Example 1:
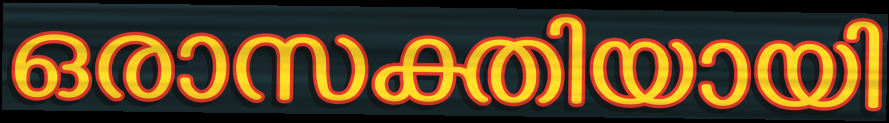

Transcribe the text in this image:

ഒരാസക്തിയായി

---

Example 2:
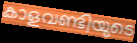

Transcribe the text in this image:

കാളവണ്ടിയുടെ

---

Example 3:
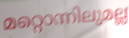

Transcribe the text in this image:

മറ്റൊന്നിലുമല്ല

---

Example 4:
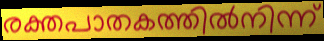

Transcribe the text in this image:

രക്തപാതകത്തിൽനിന്ന്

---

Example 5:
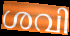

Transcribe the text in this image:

ശവി